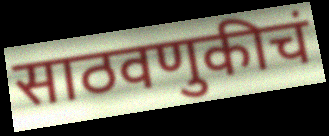
साठवणुकीचं